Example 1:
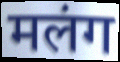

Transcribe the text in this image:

मलंग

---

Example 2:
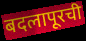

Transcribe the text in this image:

बदलापूरची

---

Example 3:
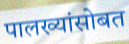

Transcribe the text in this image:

पालख्यांसोबत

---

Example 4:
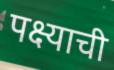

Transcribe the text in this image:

पक्ष्याची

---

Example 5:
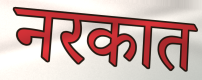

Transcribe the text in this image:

नरकात